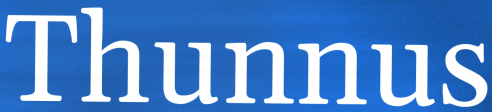
Thunnus